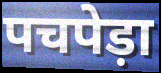
पचपेड़ा